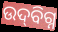
ଉଦ୍‍ବିଗ୍ନ